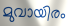
മുവായിരം